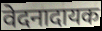
वेदनादायक